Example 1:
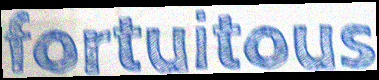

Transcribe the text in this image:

fortuitous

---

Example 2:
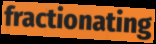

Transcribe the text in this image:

fractionating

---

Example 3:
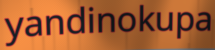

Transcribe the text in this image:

yandinokupa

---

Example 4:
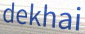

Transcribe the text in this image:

dekhai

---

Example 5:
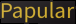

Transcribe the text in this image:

Papular